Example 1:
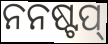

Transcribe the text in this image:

ନନଷ୍ଟପ୍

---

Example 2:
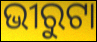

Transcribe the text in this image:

ଭୀରୁଟା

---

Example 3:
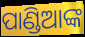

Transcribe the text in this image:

ପାଣ୍ଡିଆଙ୍କ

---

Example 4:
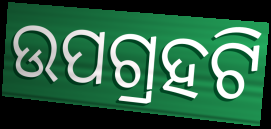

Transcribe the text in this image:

ଉପଗ୍ରହଟି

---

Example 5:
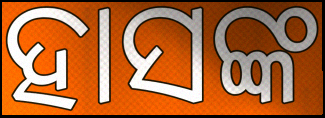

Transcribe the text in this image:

ହାସଙ୍କ